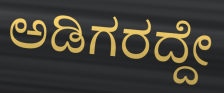
ಅಡಿಗರದ್ದೇ